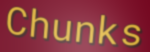
Chunks